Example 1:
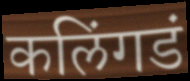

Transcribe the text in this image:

कलिंगडं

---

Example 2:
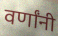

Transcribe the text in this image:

वर्णांनी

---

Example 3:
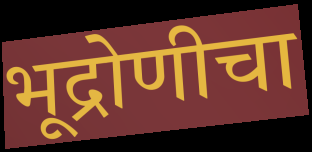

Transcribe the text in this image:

भूद्रोणीचा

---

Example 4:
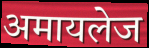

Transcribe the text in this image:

अमायलेज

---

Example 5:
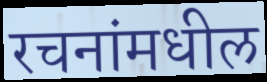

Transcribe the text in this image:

रचनांमधील